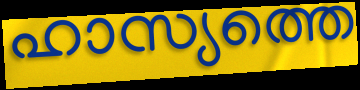
ഹാസ്യത്തെ